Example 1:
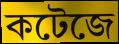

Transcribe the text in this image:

কটেজে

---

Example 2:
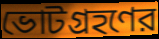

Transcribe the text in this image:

ভোটগ্রহণের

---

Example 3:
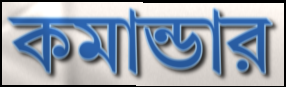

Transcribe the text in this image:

কমান্ডার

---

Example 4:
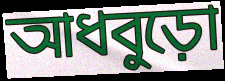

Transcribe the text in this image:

আধবুড়ো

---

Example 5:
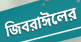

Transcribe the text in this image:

জিবরাঈলের